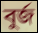
বুর্জ